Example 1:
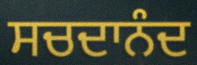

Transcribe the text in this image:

ਸਚਦਾਨੰਦ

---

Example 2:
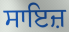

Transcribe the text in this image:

ਸਾਇਜ਼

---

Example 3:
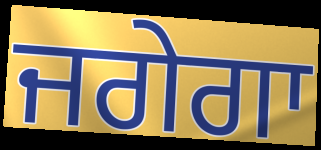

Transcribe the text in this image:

ਜਗੇਗਾ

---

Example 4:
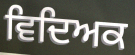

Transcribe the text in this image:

ਵਿਦਿਅਕ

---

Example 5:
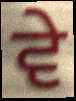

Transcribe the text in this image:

ਵੇ